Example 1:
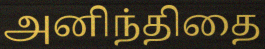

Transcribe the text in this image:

அனிந்திதை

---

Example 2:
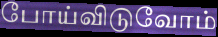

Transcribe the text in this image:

போய்விடுவோம்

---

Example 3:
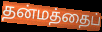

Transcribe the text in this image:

தன்மத்தைப்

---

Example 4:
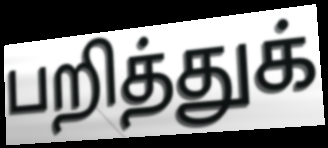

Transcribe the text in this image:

பறித்துக்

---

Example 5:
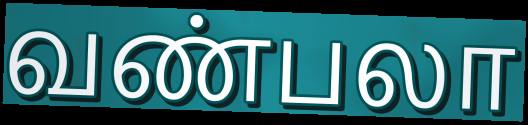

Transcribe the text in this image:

வண்பலா